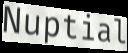
Nuptial